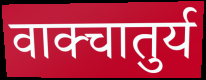
वाक्चातुर्य